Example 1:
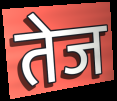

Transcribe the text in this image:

तेज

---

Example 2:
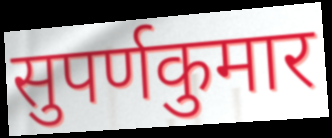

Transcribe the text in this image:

सुपर्णकुमार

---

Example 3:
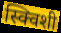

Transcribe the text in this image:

स्क्विशी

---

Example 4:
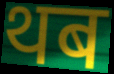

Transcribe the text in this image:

थब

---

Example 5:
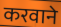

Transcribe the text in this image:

करवाने